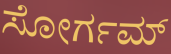
ಸೋರ್ಗಮ್